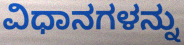
ವಿಧಾನಗಳನ್ನು